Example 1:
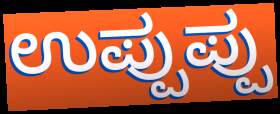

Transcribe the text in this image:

ಉಪ್ಪುಪ್ಪು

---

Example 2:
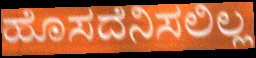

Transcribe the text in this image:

ಹೊಸದೆನಿಸಲಿಲ್ಲ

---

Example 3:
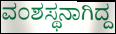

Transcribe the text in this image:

ವಂಶಸ್ಥನಾಗಿದ್ದ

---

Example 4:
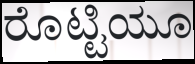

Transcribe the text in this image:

ರೊಟ್ಟಿಯೂ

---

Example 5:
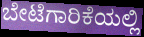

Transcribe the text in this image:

ಬೇಟೆಗಾರಿಕೆಯಲ್ಲಿ